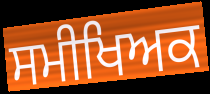
ਸਮੀਖਿਅਕ